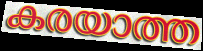
കരയാത്ത